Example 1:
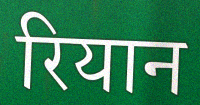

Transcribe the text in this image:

रियान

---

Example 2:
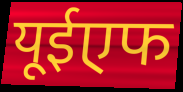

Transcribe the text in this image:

यूईएफ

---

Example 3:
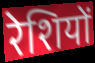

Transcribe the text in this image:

रेशियों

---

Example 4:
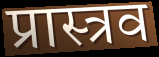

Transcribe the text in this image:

प्रास्त्रव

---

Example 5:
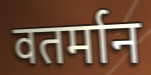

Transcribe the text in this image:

वतर्मान